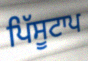
ਪਿੱਸੂਟਾਪ